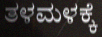
ತಳಮಳಕ್ಕೆ